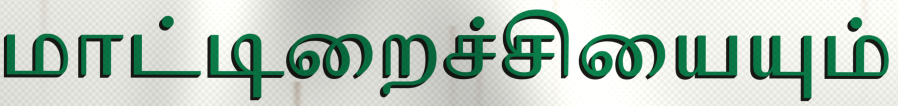
மாட்டிறைச்சியையும்